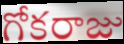
గోకరాజు